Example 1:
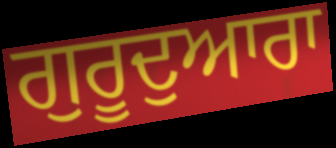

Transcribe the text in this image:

ਗੁਰੂਦੁਆਰਾ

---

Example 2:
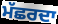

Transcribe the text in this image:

ਮੱਛਰਦਾ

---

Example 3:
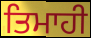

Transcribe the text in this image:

ਤਿਮਾਹੀ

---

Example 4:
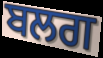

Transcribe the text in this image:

ਬਲਗ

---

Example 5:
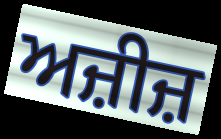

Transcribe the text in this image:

ਅਜ਼ੀਜ਼